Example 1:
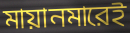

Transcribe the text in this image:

মায়ানমারেই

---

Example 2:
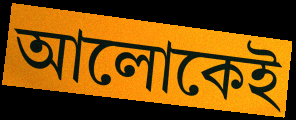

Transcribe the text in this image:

আলোকেই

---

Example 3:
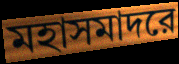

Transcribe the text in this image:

মহাসমাদরে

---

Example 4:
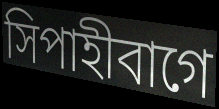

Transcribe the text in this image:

সিপাহীবাগে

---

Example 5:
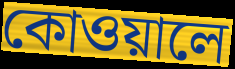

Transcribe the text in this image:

কোওয়ালে